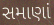
સમાણાં